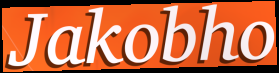
Jakobho